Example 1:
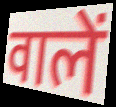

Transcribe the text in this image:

वालें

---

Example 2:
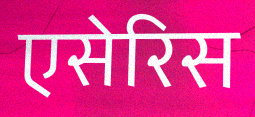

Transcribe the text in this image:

एसेरिस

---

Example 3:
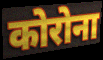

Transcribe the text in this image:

कोरोना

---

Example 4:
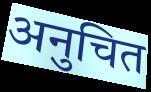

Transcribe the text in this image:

अनुचित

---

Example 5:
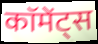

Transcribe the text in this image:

कॉमेंट्स